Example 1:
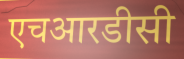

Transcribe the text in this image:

एचआरडीसी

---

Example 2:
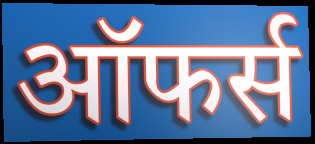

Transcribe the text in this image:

ऑफर्स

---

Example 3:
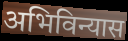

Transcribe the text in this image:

अभिविन्यास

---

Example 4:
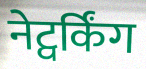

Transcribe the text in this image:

नेट्वर्किंग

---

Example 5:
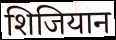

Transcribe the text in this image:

शिजियान